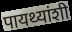
पायथ्यांशी